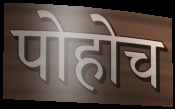
पोहोच